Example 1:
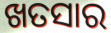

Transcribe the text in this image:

ଖତସାର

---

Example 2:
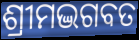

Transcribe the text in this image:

ଶ୍ରୀମଦ୍ଭଗବତ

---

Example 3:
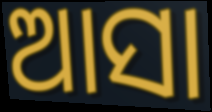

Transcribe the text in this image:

ଆସା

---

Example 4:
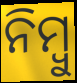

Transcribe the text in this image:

ନିମ୍ବୁ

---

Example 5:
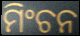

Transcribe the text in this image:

ମିଂଚନ